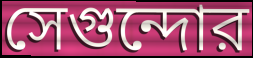
সেগুন্দোর